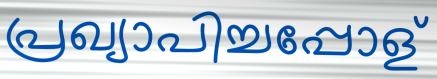
പ്രഖ്യാപിച്ചപ്പോള്